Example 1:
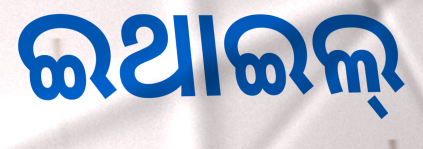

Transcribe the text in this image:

ଇଥାଇଲ୍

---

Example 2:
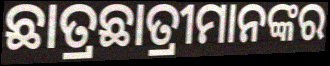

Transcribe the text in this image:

ଛାତ୍ରଛାତ୍ରୀମାନଙ୍କର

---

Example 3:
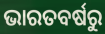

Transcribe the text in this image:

ଭାରତବର୍ଷରୁ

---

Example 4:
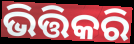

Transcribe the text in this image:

ଭିତ୍ତିକରି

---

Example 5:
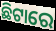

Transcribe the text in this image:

ଛିଟାରେ